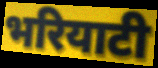
भरियाटी